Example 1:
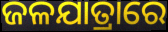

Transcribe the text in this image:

ଜଳଯାତ୍ରାରେ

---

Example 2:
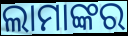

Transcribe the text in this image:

ଲାମାଙ୍କର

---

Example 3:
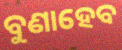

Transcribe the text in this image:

ବୁଣାହେବ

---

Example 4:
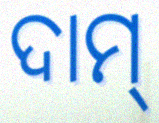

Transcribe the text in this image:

ଦାମ୍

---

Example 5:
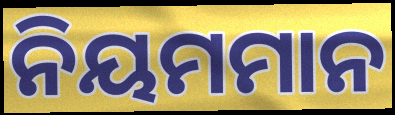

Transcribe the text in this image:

ନିୟମମାନ